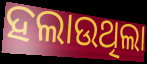
ହଲାଉଥିଲା